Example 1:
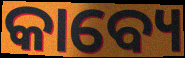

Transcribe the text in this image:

କାବ୍ୟେ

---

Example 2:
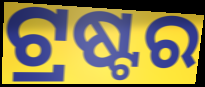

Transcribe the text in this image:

ଟ୍ରଷ୍ଟର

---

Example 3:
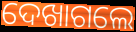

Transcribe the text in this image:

ଦେଖାଗଲେ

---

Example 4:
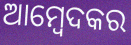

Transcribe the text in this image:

ଆମ୍ବେଦକର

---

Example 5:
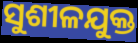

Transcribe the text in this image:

ସୁଶୀଳଯୁକ୍ତ